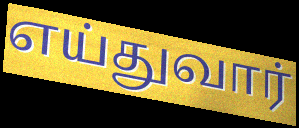
எய்துவார்